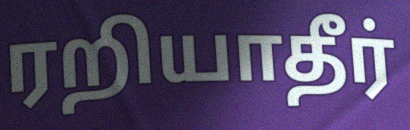
ரறியாதீர்